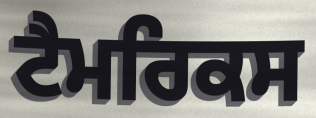
ਟੈਮਰਿਕਸ